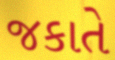
જકાતે